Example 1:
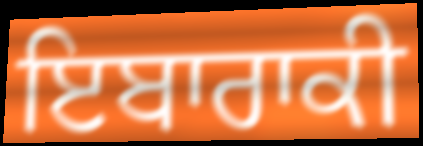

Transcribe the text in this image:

ਇਬਾਰਾਕੀ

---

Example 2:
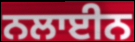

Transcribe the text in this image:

ਨਲਾਈਨ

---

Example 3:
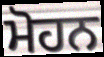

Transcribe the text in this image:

ਮੋਹਨ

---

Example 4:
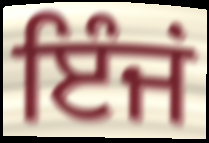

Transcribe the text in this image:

ਇੰਜਂ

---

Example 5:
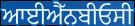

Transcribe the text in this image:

ਆਈਐੱਨਬੀਓਸੀ